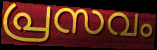
പ്രസവം